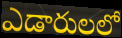
ఎడారులలో